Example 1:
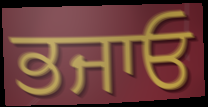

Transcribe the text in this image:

ਭਜਾਓ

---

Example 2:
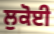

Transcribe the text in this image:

ਲੁਕੋਈ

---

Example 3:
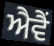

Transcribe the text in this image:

ਐਵੈਂ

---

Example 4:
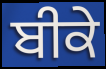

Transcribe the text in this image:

ਬੀਕੇ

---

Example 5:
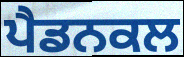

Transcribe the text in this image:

ਪੈਡਨਕਲ